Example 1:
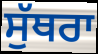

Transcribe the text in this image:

ਸੁੱਥਰਾ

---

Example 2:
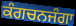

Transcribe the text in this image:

ਕੰਗਚਨਜੰਗਾ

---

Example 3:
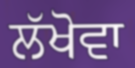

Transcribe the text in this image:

ਲੱਖੋਵਾ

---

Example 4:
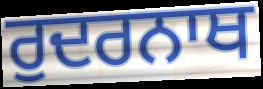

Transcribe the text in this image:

ਰੁਦਰਨਾਥ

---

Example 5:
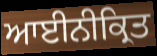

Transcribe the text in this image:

ਆਈਨੀਕ੍ਰਿਤ